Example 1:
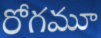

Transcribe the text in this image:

రోగమూ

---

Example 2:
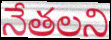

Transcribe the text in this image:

నేతలని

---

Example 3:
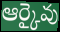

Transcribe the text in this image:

ఆర్కైవు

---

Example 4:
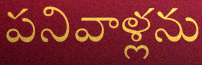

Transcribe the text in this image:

పనివాళ్లను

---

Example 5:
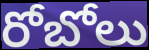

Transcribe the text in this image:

రోబోలు